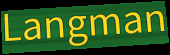
Langman